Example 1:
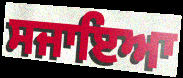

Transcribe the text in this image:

ਸਜਾਇਆ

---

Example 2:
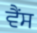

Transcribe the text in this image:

ਵੈਂਸ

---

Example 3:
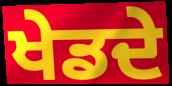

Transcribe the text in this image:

ਖੇਡਦੇ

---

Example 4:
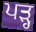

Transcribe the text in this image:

ਪੜ੍ਹ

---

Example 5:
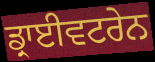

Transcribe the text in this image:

ਡ੍ਰਾਈਵਟਰੇਨ